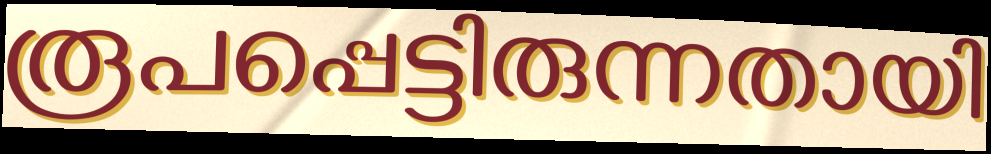
രൂപപ്പെട്ടിരുന്നതായി